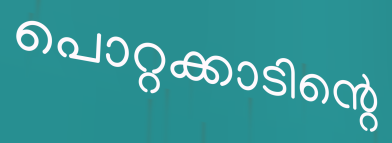
പൊറ്റക്കാടിന്റെ